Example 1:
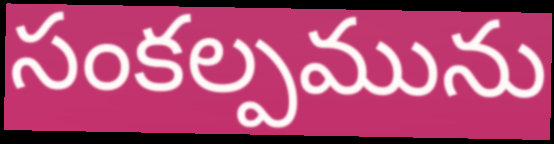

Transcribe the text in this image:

సంకల్పమును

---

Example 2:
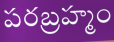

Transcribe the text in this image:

పరబ్రహ్మం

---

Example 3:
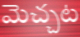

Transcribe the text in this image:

మెచ్చట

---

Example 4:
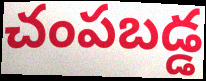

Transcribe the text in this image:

చంపబడ్డ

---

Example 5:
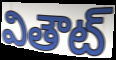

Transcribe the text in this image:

వితౌట్